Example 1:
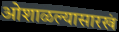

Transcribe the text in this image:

ओशाळल्यासारखं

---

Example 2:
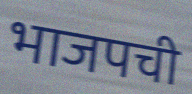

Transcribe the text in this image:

भाजपची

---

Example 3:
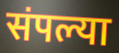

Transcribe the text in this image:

संपल्या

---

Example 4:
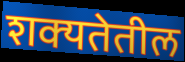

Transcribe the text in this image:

शक्यतेतील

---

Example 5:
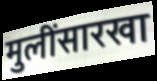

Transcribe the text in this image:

मुलींसारखा